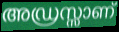
അഡ്രസ്സാണ്